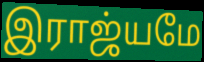
இராஜ்யமே